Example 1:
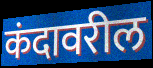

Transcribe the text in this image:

कंदावरील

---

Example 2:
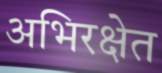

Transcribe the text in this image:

अभिरक्षेत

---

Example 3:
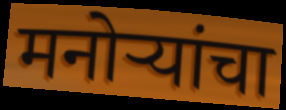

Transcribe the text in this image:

मनोर्‍यांचा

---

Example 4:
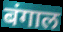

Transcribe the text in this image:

बंगाल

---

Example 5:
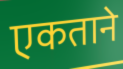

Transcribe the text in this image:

एकताने